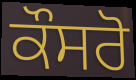
ਕੌਸਰੋ